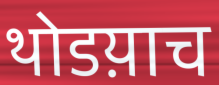
थोडय़ाच